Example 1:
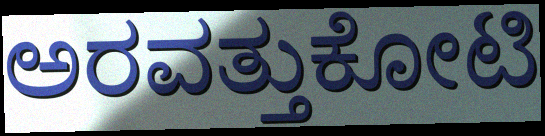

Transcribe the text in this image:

ಅರವತ್ತುಕೋಟಿ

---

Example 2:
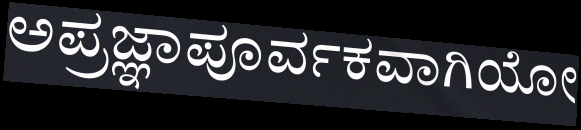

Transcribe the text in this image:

ಅಪ್ರಜ್ಞಾಪೂರ್ವಕವಾಗಿಯೋ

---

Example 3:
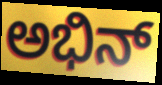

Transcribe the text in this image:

ಅಭಿನ್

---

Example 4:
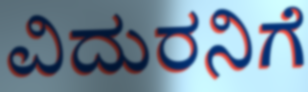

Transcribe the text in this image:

ವಿದುರನಿಗೆ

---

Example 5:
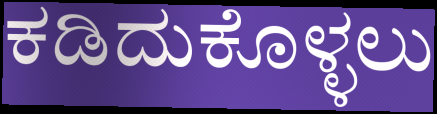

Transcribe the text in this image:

ಕಡಿದುಕೊಳ್ಳಲು